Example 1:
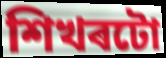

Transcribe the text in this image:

শিখৰটো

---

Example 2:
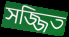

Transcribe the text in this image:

সজ্জিত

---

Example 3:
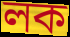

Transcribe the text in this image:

লক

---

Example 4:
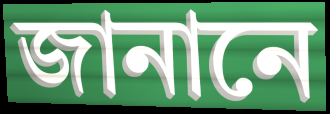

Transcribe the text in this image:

জানানে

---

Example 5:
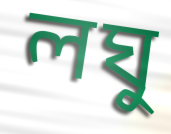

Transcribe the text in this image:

লঘু